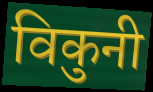
विकुनी